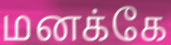
மனக்கே